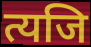
त्यजि